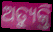
ଅତ୍ୟୁକ୍ତି